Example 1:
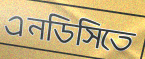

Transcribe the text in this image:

এনডিসিতে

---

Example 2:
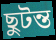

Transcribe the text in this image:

ছুটন্ত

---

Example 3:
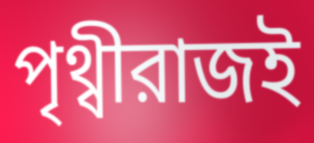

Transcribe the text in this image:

পৃথ্বীরাজই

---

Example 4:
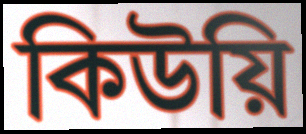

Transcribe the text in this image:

কিউয়ি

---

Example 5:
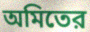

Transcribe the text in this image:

অমিতের